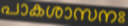
പാകശാസനഃ